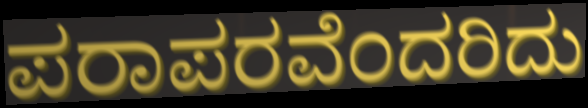
ಪರಾಪರವೆಂದರಿದು